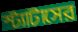
স্ট্যাটাসের